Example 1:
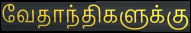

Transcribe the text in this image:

வேதாந்திகளுக்கு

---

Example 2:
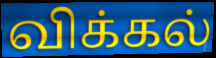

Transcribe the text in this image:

விக்கல்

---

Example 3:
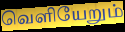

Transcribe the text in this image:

வெளியேறும்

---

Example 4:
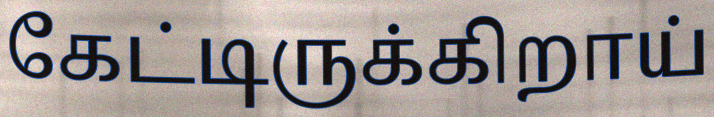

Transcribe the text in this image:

கேட்டிருக்கிறாய்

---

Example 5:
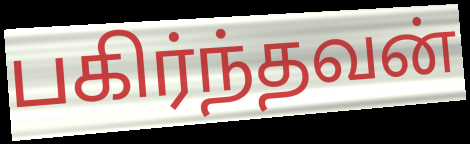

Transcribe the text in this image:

பகிர்ந்தவன்